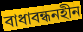
বাধাবন্ধনহীন